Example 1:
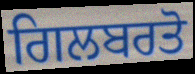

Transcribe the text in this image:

ਗਿਲਬਰਤੋ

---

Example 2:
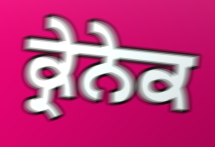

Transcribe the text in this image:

ਕ੍ਰੇਨੇਕ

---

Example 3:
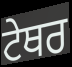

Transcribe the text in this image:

ਟੇਥਰ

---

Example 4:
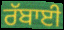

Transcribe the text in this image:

ਰੱਬਾਈ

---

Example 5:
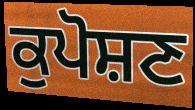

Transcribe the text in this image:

ਕੁਪੋਸ਼ਣ